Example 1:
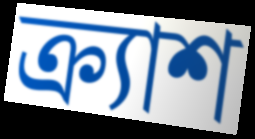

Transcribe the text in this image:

ক্র্যাশ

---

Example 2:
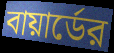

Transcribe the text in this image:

বায়ার্ডের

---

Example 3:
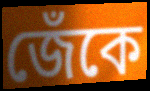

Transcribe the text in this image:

জেঁকে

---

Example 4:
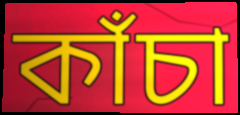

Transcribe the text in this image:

কাঁচা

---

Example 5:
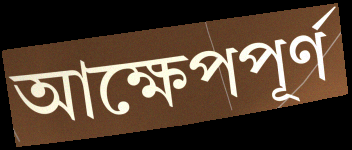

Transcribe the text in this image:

আক্ষেপপূর্ণ